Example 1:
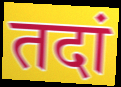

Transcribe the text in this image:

तदां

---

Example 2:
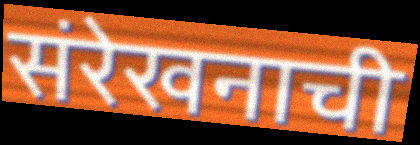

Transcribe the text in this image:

संरेखनाची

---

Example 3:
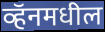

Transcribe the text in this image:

व्हॅनमधील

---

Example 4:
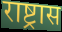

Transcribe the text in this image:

राष्ट्रास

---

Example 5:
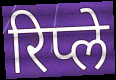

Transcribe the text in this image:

रिप्ले